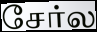
சேர்ல